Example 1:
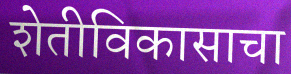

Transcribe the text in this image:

शेतीविकासाचा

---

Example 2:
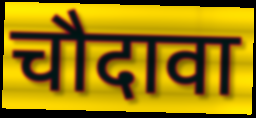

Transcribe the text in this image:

चौदावा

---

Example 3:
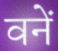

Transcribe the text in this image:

वनें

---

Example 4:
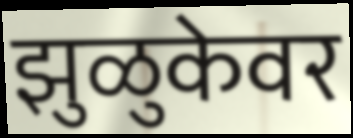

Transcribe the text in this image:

झुळुकेवर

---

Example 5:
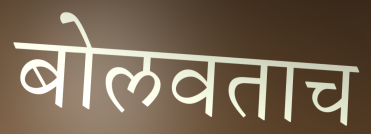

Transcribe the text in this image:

बोलवताच